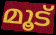
മൂട്